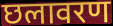
छलावरण